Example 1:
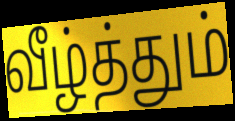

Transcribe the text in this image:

வீழ்த்தும்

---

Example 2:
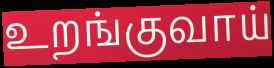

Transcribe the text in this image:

உறங்குவாய்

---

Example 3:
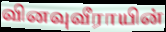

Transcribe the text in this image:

வினவுவீராயின்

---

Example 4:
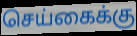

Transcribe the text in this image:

செய்கைக்கு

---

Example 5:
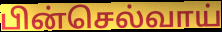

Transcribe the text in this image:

பின்செல்வாய்